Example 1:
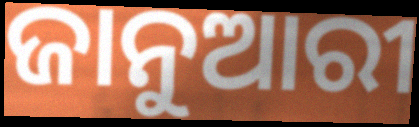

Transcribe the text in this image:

ଜାନୁଆରୀ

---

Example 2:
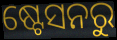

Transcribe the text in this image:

ଷ୍ଟେସନରୁ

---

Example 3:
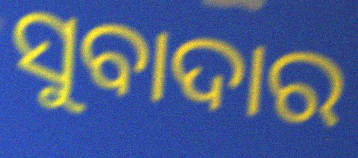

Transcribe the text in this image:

ସୁବାଦାର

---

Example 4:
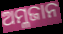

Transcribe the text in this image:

ଅମ୍ଳଜାନ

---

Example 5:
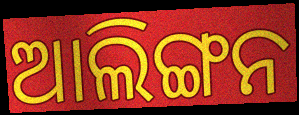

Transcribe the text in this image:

ଆଲିଙ୍ଗନ